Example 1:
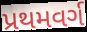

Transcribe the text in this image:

પ્રથમવર્ગ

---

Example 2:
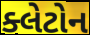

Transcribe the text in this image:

ક્લેટોન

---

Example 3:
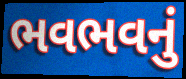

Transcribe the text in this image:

ભવભવનું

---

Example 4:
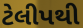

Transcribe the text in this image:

ટેલીપથી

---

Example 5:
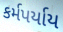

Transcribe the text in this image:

કર્મપર્યાય